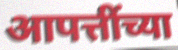
आपत्तींच्या